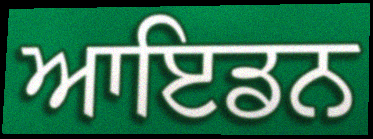
ਆਇਡਨ